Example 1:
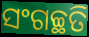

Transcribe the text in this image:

ସଂଗଚ୍ଛତି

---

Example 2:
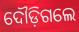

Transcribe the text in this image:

ଦୌଡ଼ିଗଲେ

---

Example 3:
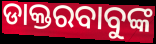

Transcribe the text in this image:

ଡାକ୍ତରବାବୁଙ୍କ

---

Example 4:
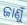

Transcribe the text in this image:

ଜାଣୁଁ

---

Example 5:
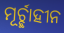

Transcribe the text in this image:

ମୂର୍ଚ୍ଛାହୀନ